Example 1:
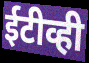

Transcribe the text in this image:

ईटीव्ही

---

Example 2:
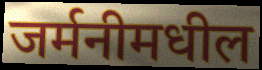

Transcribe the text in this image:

जर्मनीमधील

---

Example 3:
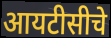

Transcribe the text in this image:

आयटीसीचे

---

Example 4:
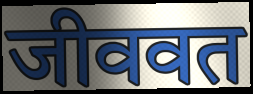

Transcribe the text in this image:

जीववत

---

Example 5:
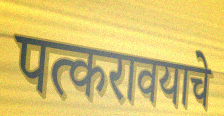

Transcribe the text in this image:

पत्करावयाचे